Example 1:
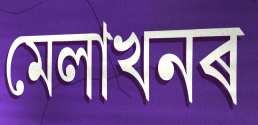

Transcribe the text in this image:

মেলাখনৰ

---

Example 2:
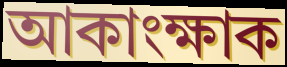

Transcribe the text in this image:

আকাংক্ষাক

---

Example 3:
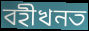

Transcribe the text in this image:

বহীখনত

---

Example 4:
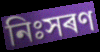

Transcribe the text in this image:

নিঃসৰণ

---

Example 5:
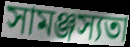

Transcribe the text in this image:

সামঞ্জস্যতা